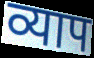
व्याप